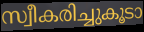
സ്വീകരിച്ചുകൂടാ